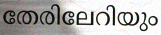
തേരിലേറിയും